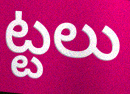
ట్టలు